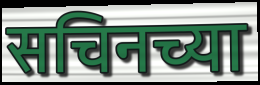
सचिनच्या